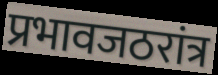
प्रभावजठरांत्र